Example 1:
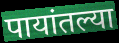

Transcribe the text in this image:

पायांतल्या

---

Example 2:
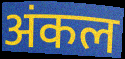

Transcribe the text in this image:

अंकल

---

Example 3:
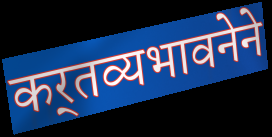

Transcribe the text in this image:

कर्तव्यभावनेने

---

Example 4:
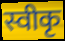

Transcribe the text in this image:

स्वीकृ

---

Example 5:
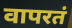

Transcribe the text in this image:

वापरतं